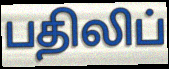
பதிலிப்